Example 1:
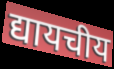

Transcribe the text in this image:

द्यायचीय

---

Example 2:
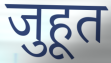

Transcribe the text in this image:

जुहूत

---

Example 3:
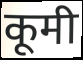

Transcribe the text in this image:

कूमी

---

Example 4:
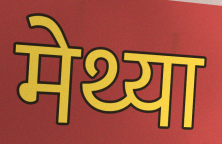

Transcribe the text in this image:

मेथ्या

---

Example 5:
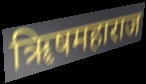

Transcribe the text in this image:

ॠिषमहाराज